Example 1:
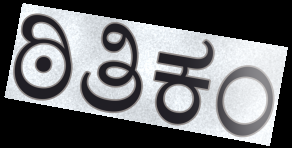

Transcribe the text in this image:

ಠಿತಿಕಂ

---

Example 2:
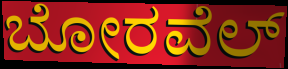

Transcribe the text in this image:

ಬೋರವೆಲ್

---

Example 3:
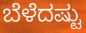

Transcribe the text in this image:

ಬೆಳೆದಷ್ಟು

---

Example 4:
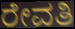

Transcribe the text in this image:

ರೇವತಿ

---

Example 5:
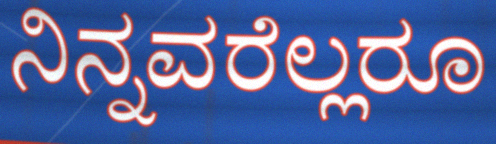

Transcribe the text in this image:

ನಿನ್ನವರೆಲ್ಲರೂ